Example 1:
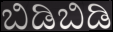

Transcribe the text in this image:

ಬಿಡಿಬಿಡಿ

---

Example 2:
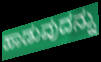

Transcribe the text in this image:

ಹಾಡುವುದನ್ನು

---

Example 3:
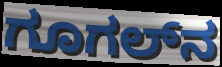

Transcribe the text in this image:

ಗೂಗಲ್‌ನ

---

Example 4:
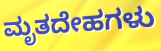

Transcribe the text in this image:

ಮೃತದೇಹಗಳು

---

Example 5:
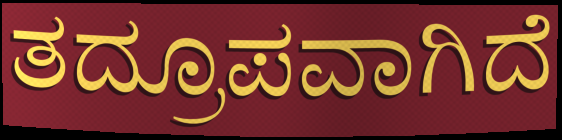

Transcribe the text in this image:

ತದ್ರೂಪವಾಗಿದೆ